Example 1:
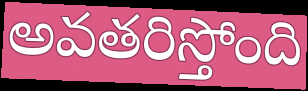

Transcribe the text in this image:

అవతరిస్తోంది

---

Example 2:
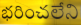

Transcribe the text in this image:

భరించలేని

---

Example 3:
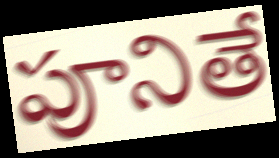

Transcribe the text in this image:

పూనితే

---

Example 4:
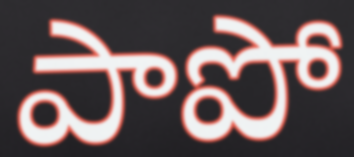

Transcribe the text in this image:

పాపో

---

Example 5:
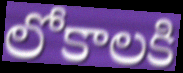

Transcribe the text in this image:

లోకాలకి